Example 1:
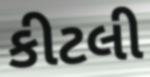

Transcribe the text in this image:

કીટલી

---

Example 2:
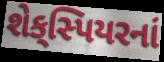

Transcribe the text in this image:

શેક્‌સ્પિયરનાં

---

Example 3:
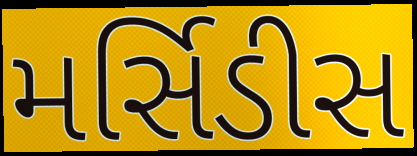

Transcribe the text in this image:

મર્સિડીસ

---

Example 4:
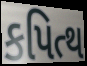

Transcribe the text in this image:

કપિત્થ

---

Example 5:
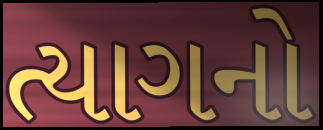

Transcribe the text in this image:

ત્યાગનો